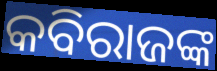
କବିରାଜଙ୍କ